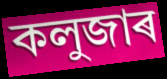
কলুজাৰ